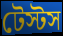
টেস্টস